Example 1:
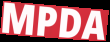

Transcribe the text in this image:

MPDA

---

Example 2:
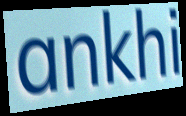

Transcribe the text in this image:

ankhi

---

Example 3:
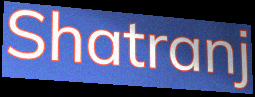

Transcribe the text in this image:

Shatranj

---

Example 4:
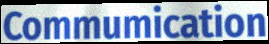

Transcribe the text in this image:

Commumication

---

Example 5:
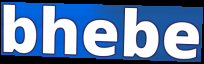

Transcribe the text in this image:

bhebe